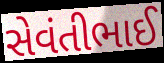
સેવંતીભાઈ